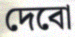
দেবো